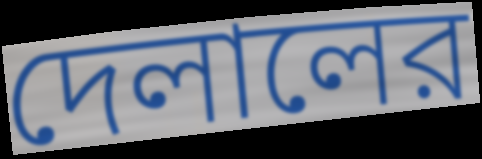
দেলালের